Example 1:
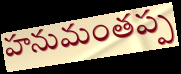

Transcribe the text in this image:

హనుమంతప్ప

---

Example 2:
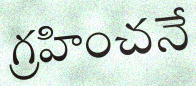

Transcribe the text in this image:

గ్రహించనే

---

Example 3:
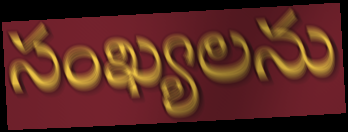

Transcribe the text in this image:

సంఖ్యలను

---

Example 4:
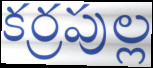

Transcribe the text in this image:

కర్రపుల్ల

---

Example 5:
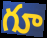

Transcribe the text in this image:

గూ